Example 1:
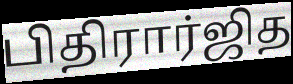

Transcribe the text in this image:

பிதிரார்ஜித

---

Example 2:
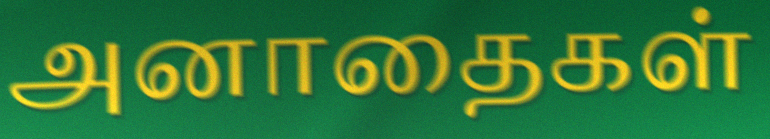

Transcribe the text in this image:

அனாதைகள்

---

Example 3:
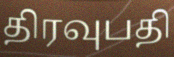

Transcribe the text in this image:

திரவுபதி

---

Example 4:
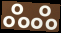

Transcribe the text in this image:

ஃஃ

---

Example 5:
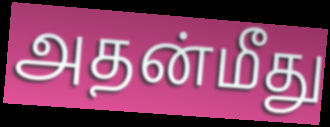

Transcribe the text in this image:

அதன்மீது